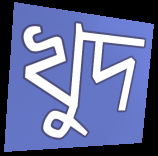
খুদ